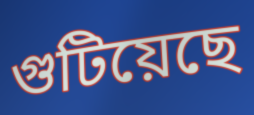
গুটিয়েছে